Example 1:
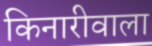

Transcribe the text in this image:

किनारीवाला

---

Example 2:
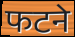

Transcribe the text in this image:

फटने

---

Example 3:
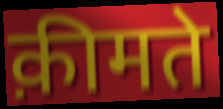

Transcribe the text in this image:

क़ीमते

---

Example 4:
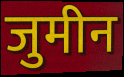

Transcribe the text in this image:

जुमीन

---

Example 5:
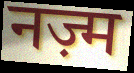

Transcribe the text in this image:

नज़्म